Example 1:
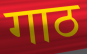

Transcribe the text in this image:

गाठ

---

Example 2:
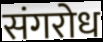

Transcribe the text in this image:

संगरोध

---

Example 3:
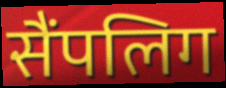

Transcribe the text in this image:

सैंपलिग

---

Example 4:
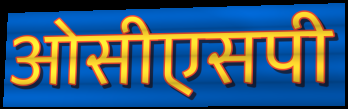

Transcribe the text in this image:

ओसीएसपी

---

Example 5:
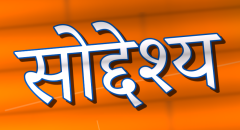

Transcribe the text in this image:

सोद्देश्य